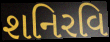
શનિરવિ